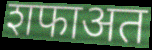
शफाअत